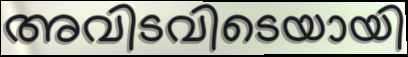
അവിടവിടെയായി